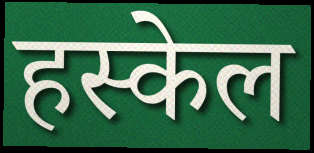
हस्केल